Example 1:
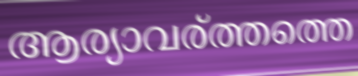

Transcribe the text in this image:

ആര്യാവര്ത്തത്തെ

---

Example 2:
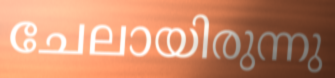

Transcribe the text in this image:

ചേലായിരുന്നു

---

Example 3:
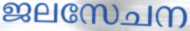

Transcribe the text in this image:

ജലസേചന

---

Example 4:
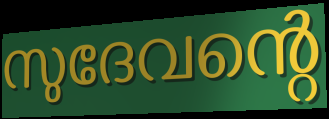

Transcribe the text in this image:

സുദേവന്റെ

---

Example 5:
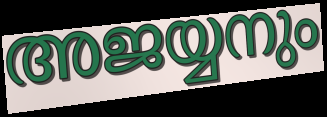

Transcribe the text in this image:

അജയ്യനും